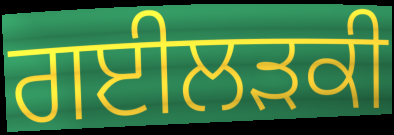
ਗਈਲੜਕੀ